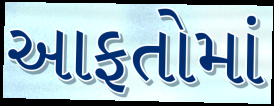
આફતોમાં